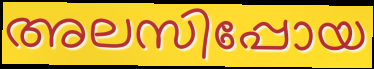
അലസിപ്പോയ